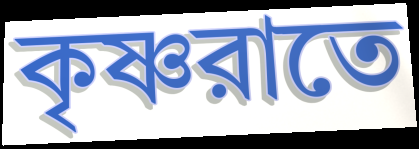
কৃষ্ণরাতে